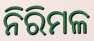
ନିରିମଳ